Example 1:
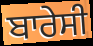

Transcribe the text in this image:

ਬਾਰੇਸੀ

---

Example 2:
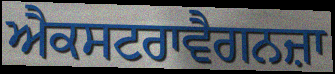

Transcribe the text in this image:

ਐਕਸਟਰਾਵੈਗਨਜ਼ਾ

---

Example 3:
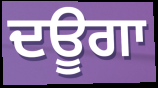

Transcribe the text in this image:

ਦਊਗਾ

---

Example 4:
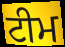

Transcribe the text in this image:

ਟੀਮ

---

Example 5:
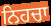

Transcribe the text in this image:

ਨਿਹਚਾ